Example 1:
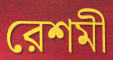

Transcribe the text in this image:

রেশমী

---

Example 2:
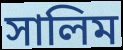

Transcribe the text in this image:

সালিম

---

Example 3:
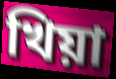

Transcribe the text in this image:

খিয়া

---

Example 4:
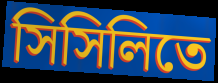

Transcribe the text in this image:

সিসিলিতে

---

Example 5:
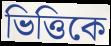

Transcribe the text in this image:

ভিত্তিকে